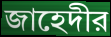
জাহেদীর